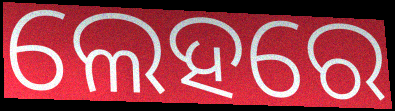
ଲେହରେ